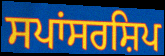
ਸਪਾਂਸਰਸ਼ਿਪ